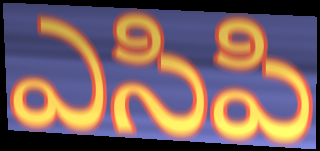
ఎసిపి